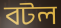
বটল